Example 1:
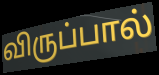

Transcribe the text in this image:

விருப்பால்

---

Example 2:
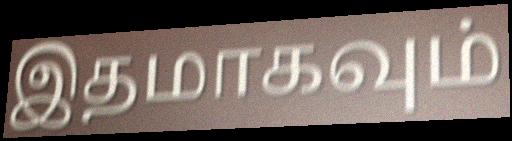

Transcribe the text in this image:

இதமாகவும்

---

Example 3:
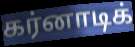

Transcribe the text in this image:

கர்னாடிக்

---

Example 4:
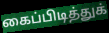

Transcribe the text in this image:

கைப்பிடித்துக்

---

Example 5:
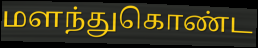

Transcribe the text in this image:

மளந்துகொண்ட